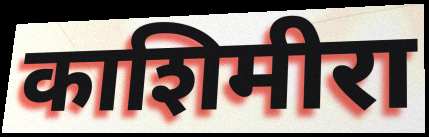
काशिमीरा